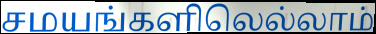
சமயங்களிலெல்லாம்